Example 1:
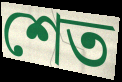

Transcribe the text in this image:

শেত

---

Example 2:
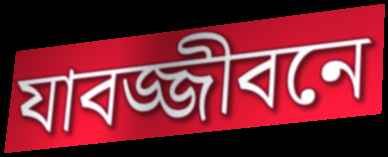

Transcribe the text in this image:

যাবজ্জীবনে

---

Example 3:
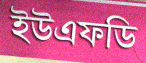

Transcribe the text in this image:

ইউএফডি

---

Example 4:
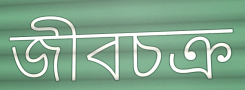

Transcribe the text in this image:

জীবচক্র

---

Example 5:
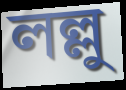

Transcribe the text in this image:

লল্লু